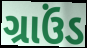
ગ્રાઉંડ